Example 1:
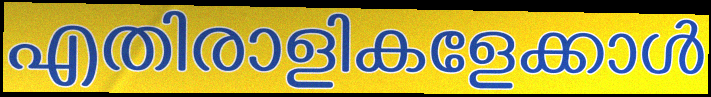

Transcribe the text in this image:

എതിരാളികളേക്കാൾ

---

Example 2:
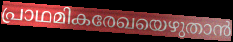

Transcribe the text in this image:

പ്രാഥമികരേഖയെഴുതാൻ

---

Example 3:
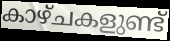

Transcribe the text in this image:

കാഴ്ചകളുണ്ട്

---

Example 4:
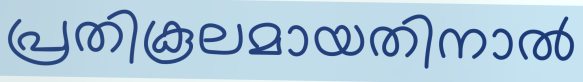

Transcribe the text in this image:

പ്രതികൂലമായതിനാൽ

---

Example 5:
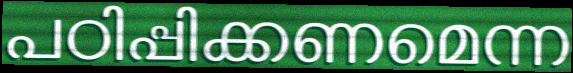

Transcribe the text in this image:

പഠിപ്പിക്കണമെന്ന